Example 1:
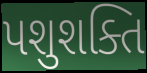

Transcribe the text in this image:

પશુશક્તિ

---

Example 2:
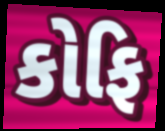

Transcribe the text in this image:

કોફિ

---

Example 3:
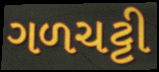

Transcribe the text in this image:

ગળચટ્ટી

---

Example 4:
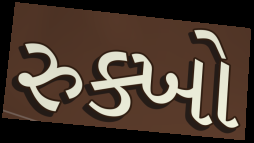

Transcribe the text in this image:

રુક્ખો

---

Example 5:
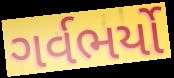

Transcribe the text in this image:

ગર્વભર્યો